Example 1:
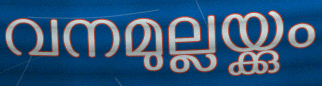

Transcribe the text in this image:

വനമുല്ലയ്ക്കും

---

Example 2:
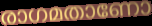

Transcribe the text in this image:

രാഗമതാണോ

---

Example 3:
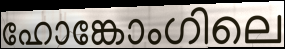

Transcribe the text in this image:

ഹോങ്കോംഗിലെ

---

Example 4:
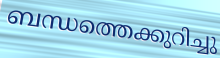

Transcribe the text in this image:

ബന്ധത്തെക്കുറിച്ചു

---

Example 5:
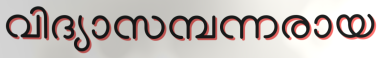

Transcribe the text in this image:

വിദ്യാസമ്പന്നരായ